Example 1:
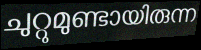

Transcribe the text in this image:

ചുറ്റുമുണ്ടായിരുന്ന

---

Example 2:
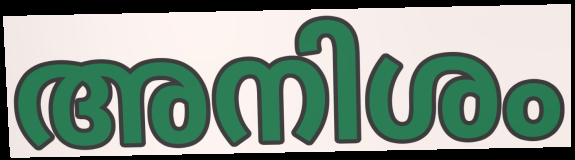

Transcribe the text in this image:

അനിശം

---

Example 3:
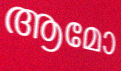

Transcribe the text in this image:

ആമോ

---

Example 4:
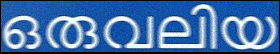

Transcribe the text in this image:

ഒരുവലിയ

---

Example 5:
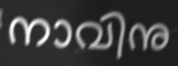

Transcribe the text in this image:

നാവിനു